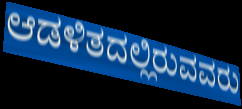
ಆಡಳಿತದಲ್ಲಿರುವವರು